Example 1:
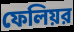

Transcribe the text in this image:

ফেলিয়র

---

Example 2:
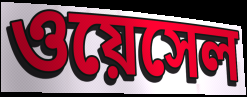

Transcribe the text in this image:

ওয়েসেল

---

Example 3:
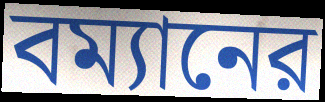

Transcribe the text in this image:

বম্যানের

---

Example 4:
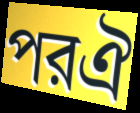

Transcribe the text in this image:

পরঐ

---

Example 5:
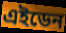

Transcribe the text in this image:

এইডেন